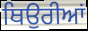
ਥਿਉਰੀਆਂ